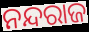
ନନ୍ଦରାଜ